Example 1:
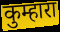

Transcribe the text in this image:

कुम्हारा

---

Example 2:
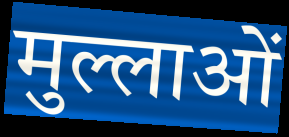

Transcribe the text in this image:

मुल्लाओं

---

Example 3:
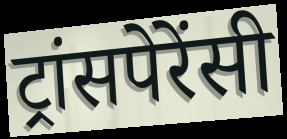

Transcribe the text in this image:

ट्रांसपेरेंसी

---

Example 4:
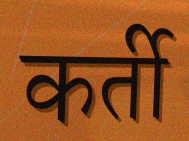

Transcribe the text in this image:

कर्ती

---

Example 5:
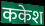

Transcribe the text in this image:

ककेश